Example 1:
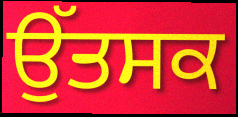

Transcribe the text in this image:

ਉੱਤਸਕ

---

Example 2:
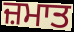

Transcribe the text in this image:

ਜ਼ਮਾਤ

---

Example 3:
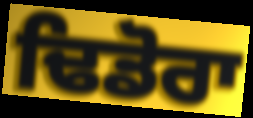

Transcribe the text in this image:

ਢਿਡੋਰਾ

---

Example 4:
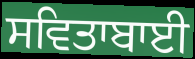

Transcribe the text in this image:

ਸਵਿਤਾਬਾਈ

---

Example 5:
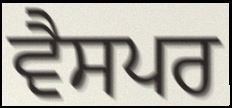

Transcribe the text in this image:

ਵੈਸਪਰ